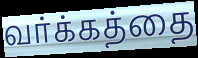
வர்க்கத்தை